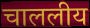
चाललीय